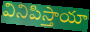
వినిపిస్తాయా